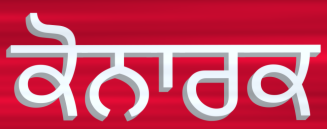
ਕੋਨਾਰਕ